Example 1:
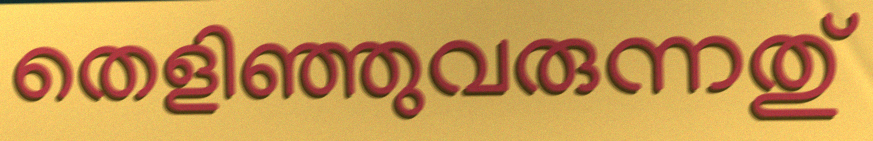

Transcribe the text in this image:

തെളിഞ്ഞുവരുന്നതു്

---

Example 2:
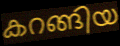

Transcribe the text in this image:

കറങ്ങിയ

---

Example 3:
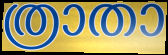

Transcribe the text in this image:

ത്രാതാ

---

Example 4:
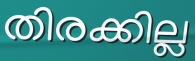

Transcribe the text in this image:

തിരക്കില്ല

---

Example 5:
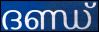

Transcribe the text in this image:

ദണ്ഡ്